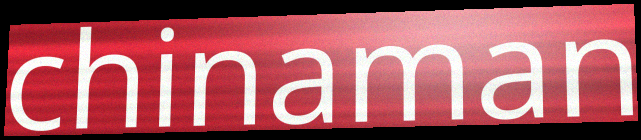
chinaman